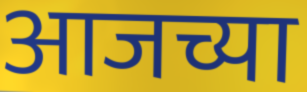
आजच्या